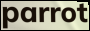
parrot